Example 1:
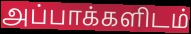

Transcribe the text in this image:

அப்பாக்களிடம்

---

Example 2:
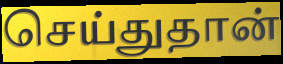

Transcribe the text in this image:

செய்துதான்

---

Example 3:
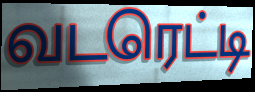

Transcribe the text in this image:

வடரெட்டி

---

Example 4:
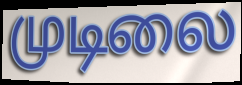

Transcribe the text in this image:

முடிலை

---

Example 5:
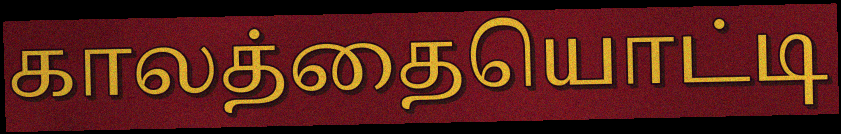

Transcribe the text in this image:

காலத்தையொட்டி